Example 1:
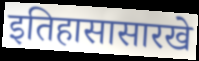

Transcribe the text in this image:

इतिहासासारखे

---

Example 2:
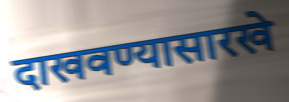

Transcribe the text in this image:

दाखवण्यासारखे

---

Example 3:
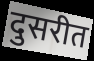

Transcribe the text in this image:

दुसरीत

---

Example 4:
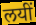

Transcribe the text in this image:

लयीं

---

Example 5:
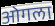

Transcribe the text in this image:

ओगला